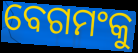
ବେଗମଂକୁ